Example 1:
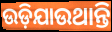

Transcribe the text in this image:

ଉଡ଼ିଯାଉଥାନ୍ତି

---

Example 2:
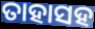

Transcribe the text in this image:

ତାହାସହ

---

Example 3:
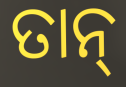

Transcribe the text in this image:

ତାନ୍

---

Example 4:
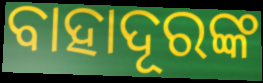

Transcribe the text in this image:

ବାହାଦୂରଙ୍କ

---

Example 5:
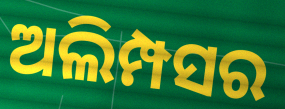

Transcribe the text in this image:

ଅଲିମ୍ପସର